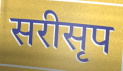
सरीसृप